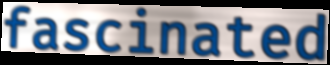
fascinated